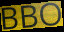
BBO